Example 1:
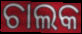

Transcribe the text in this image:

ଚାଲକ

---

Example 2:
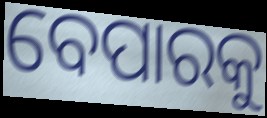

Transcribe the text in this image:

ବେପାରକୁ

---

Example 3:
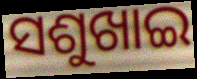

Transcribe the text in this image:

ସଶୁଖାଇ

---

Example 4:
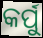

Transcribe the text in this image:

କର୍ପୁ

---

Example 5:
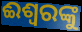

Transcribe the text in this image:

ଈଶ୍ଵରଙ୍କୁ